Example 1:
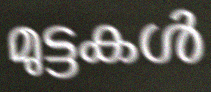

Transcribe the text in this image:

മുട്ടകൾ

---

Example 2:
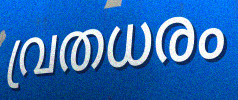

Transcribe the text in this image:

വ്രതധരം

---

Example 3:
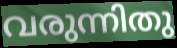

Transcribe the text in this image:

വരുന്നിതു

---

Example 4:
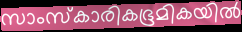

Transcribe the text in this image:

സാംസ്കാരികഭൂമികയിൽ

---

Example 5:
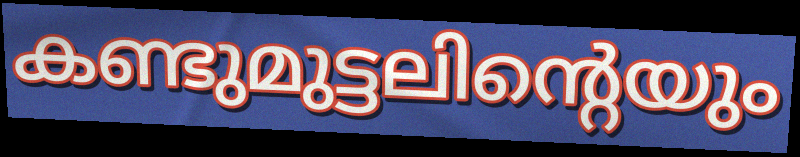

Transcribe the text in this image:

കണ്ടുമുട്ടലിന്റെയും